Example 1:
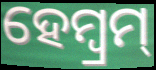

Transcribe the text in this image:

ହେମ୍ବ୍ରମ୍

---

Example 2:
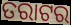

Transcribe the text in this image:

ତରାଟର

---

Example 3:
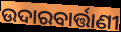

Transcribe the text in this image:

ଉଦାରବାର୍ତ୍ତାଣୀ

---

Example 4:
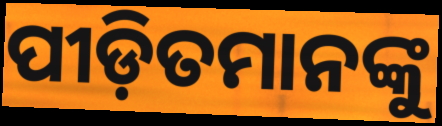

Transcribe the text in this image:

ପୀଡ଼ିତମାନଙ୍କୁ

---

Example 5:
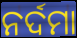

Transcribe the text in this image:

ନର୍ଦମା